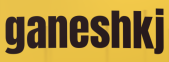
ganeshkj